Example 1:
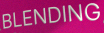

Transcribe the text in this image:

BLENDING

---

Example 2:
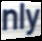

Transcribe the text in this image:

nly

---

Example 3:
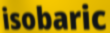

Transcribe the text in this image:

isobaric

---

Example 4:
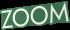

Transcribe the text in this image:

ZOOM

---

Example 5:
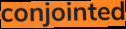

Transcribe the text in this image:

conjointed